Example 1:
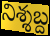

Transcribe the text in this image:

నిశ్శబ్ద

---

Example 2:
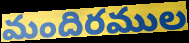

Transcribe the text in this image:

మందిరముల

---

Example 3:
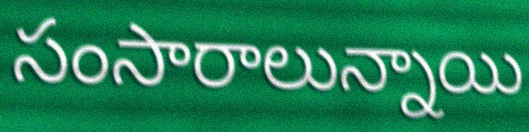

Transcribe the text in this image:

సంసారాలున్నాయి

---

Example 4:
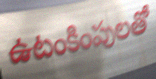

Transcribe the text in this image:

ఉటంకింపులతో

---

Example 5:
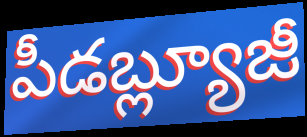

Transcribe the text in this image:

పీడబ్ల్యూజీ